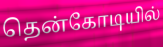
தென்கோடியில்